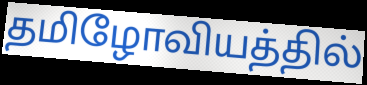
தமிழோவியத்தில்